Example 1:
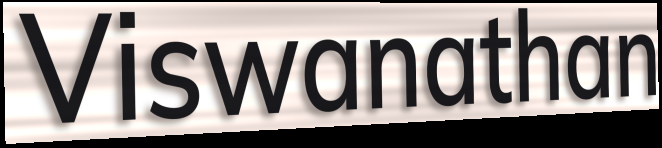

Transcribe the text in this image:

Viswanathan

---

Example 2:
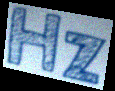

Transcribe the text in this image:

Hz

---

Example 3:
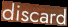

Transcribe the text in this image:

discard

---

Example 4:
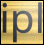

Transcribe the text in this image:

ipl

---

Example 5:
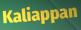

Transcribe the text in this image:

Kaliappan